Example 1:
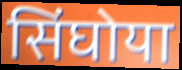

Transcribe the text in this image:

सिंघोया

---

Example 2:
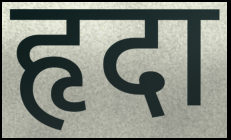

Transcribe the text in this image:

हृदा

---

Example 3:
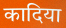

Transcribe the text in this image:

कादिया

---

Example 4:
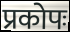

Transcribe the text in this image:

प्रकोपः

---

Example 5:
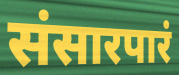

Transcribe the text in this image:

संसारपारं